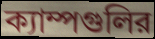
ক্যাম্পগুলির